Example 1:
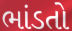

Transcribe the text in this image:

ભાંડતો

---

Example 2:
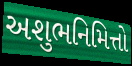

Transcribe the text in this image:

અશુભનિમિત્તો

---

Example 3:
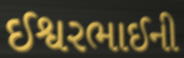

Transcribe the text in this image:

ઈશ્વરભાઈની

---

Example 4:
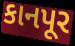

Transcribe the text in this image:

કાનપૂર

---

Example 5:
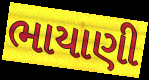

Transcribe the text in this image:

ભાયાણી